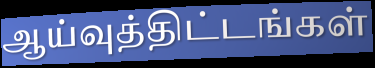
ஆய்வுத்திட்டங்கள்